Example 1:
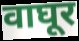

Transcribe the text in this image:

वाघूर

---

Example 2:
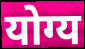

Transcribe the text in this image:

योग्य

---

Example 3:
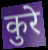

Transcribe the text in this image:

कुरे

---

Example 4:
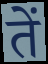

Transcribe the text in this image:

तें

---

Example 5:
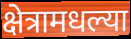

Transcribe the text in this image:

क्षेत्रामधल्या